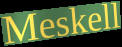
Meskell